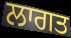
ਲਾਗਤ